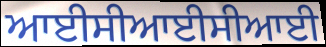
ਆਈਸੀਆਈਸੀਆਈ